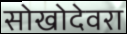
सोखोदेवरा